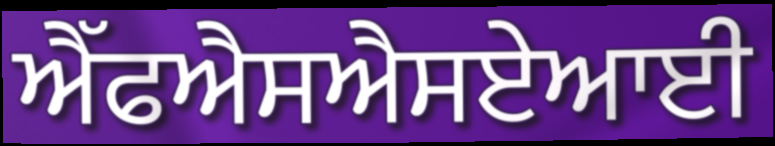
ਐੱਫਐਸਐਸਏਆਈ